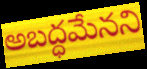
అబద్ధమేనని